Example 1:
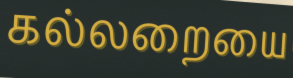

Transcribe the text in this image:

கல்லறையை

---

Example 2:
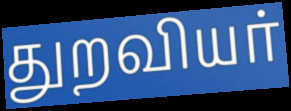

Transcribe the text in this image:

துறவியர்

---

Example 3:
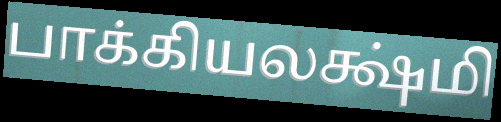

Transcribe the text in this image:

பாக்கியலக்ஷ்மி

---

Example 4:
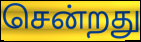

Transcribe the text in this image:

சென்றது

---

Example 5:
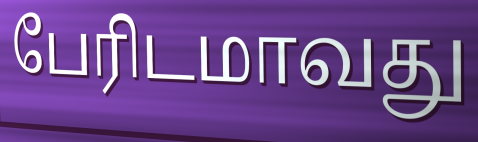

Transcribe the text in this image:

பேரிடமாவது